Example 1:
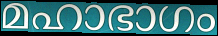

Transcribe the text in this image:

മഹാഭാഗം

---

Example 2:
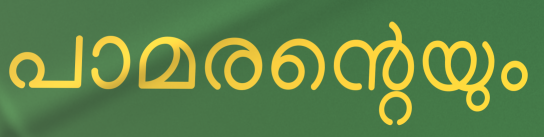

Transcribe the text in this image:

പാമരന്റെയും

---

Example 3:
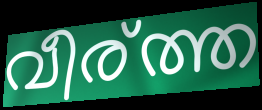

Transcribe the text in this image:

വീര്ത്ത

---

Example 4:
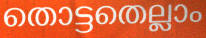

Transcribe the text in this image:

തൊട്ടതെല്ലാം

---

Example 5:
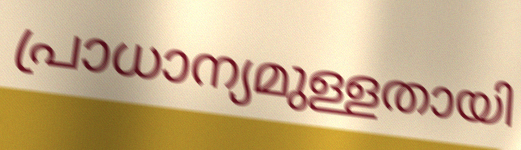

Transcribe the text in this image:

പ്രാധാന്യമുള്ളതായി